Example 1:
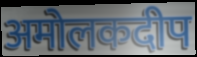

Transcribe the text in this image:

अमोलकदीप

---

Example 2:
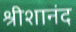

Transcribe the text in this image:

श्रीशानंद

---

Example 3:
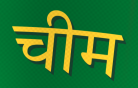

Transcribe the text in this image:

चीम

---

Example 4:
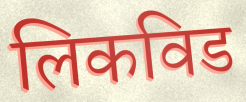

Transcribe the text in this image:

लिकविड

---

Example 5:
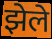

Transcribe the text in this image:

झेले